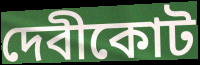
দেবীকোট